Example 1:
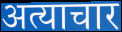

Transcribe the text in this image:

अत्‍याचार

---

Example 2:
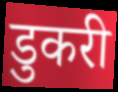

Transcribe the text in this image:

डुकरी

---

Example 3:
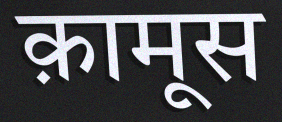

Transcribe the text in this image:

क़ामूस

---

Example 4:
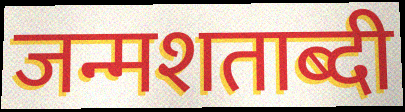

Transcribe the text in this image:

जन्मशताब्दी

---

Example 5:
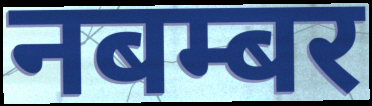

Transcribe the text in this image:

नबम्बर